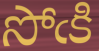
సోఁకి